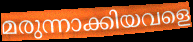
മരുന്നാക്കിയവളെ